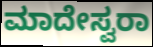
ಮಾದೇಸ್ವರಾ